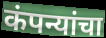
कंपन्यांचा